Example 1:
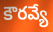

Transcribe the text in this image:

కౌరవ్యే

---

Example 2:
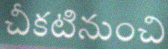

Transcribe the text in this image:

చీకటినుంచి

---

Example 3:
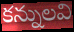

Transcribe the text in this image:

కన్నులవి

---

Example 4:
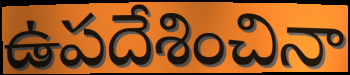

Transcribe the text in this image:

ఉపదేశించినా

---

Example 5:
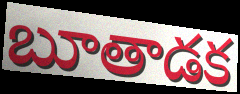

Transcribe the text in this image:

బూతాడక